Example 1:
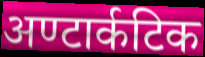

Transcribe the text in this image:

अण्टार्कटिक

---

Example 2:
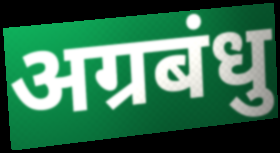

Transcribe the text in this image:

अग्रबंधु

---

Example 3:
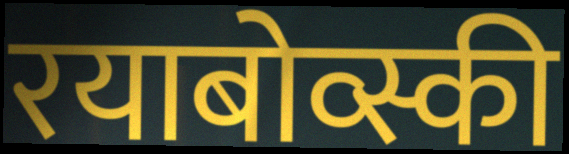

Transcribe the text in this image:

रयाबोव्स्की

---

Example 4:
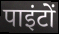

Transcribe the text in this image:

पाइंटों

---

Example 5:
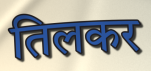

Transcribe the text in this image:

तिलकर